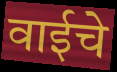
वाईचे